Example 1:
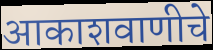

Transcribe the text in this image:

आकाशवाणीचे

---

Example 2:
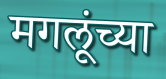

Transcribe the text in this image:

मगलूंच्या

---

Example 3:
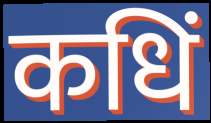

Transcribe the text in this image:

कधिं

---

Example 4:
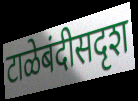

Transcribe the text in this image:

टाळेबंदीसदृश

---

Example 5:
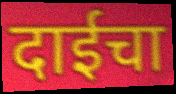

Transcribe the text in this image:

दाईचा